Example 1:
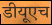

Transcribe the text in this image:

डीयूएच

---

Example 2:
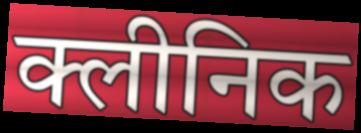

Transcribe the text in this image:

क्‍लीनिक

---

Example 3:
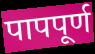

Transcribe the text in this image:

पापपूर्ण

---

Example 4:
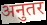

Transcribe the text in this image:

अनुतर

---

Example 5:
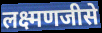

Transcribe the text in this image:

लक्ष्मणजीसे